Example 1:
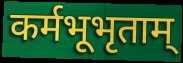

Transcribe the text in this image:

कर्मभूभृताम्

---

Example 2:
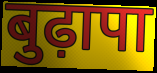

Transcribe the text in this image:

बुढ़ापा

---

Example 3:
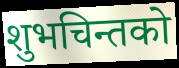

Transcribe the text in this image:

शुभचिन्तको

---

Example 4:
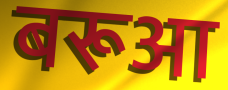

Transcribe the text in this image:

बरूआ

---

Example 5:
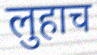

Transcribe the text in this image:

लुहाच